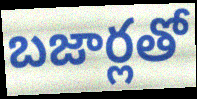
బజార్లతో